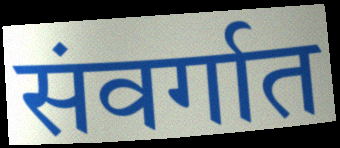
संवर्गात